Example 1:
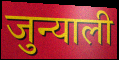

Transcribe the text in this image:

जुन्याली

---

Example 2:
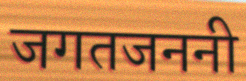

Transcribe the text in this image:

जगतजननी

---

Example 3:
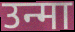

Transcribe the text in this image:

उन्मा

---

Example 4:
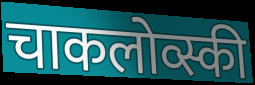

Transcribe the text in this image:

चाकलोव्स्की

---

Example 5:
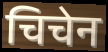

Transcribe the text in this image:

चिचेन